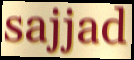
sajjad